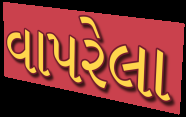
વાપરેલા